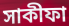
সাকীফা